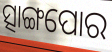
ତ୍ସାଙ୍ଗପୋର